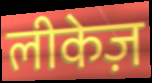
लीकेज़